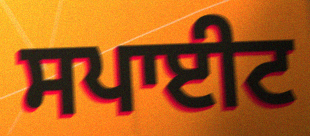
ਸਪਾਈਟ